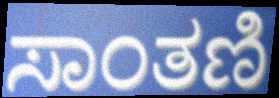
ಸಾಂತಣಿ